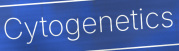
Cytogenetics